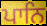
ਪਾਨਿ